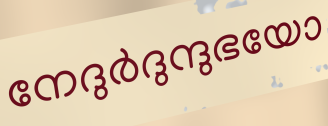
നേദുർദുന്ദുഭയോ